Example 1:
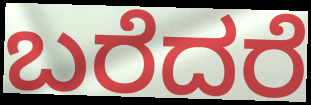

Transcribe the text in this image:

ಬರೆದರೆ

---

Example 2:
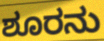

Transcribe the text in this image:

ಶೂರನು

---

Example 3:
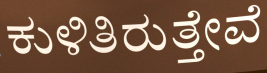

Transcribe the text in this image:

ಕುಳಿತಿರುತ್ತೇವೆ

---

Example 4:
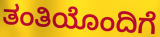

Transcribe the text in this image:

ತಂತಿಯೊಂದಿಗೆ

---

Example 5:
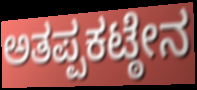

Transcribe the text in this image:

ಅತಪ್ಪಕಟ್ಠೇನ